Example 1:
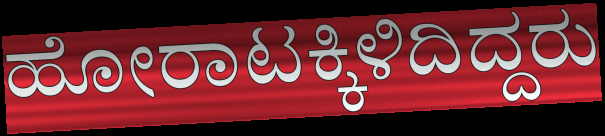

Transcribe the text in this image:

ಹೋರಾಟಕ್ಕಿಳಿದಿದ್ದರು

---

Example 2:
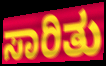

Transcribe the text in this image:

ಸಾರಿತು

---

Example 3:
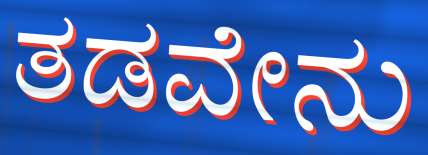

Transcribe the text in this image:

ತಡವೇನು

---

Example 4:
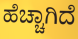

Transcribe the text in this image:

ಹೆಚ್ಚಾಗಿದೆ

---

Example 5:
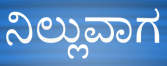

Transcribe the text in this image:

ನಿಲ್ಲುವಾಗ